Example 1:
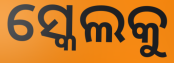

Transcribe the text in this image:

ସ୍କେଲକୁ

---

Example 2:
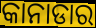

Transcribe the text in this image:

କାନାଡାର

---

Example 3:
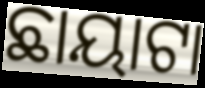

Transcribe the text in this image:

ଛାୟାଟା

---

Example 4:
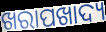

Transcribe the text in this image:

ଖରାପଖାଦ୍ୟ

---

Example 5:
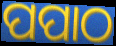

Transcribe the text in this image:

ପପାଠ